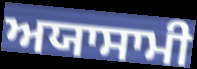
ਅਯਾਸਾਮੀ